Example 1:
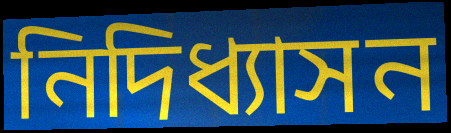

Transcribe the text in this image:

নিদিধ্যাসন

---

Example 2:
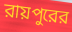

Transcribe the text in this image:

রায়পুরের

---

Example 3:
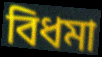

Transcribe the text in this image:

বিধমা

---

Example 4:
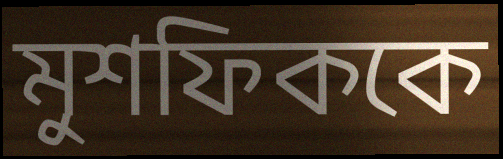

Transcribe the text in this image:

মুশফিককে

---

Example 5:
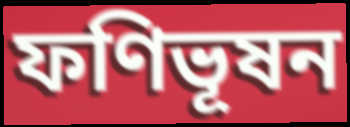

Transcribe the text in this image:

ফণিভূষন